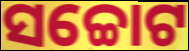
ସଚ୍ଚୋଟ